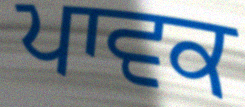
ਪਾਵਕ